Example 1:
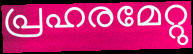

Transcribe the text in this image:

പ്രഹരമേറ്റു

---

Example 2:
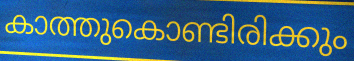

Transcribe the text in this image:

കാത്തുകൊണ്ടിരിക്കും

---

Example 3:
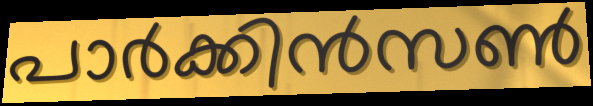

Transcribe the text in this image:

പാർക്കിൻസൺ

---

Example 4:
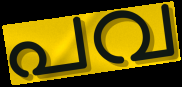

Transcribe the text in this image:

പവ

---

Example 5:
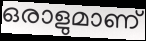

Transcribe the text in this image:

ഒരാളുമാണ്